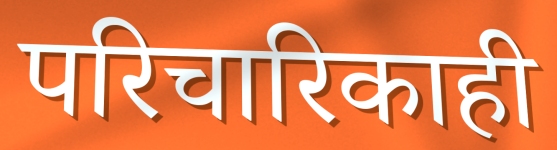
परिचारिकाही